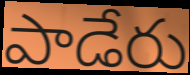
పాడేరు